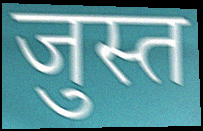
जुस्त